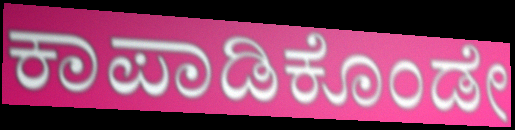
ಕಾಪಾಡಿಕೊಂಡೇ